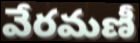
వేరమణీ